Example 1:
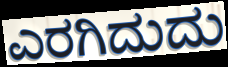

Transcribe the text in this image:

ಎರಗಿದುದು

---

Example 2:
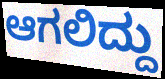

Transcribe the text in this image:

ಆಗಲಿದ್ದು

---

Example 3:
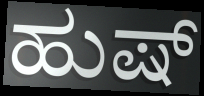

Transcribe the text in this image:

ಹುಷ್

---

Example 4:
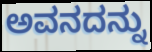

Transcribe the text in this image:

ಅವನದನ್ನು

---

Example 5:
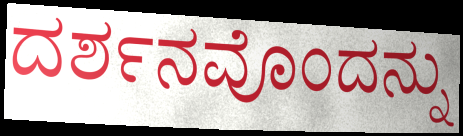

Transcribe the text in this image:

ದರ್ಶನವೊಂದನ್ನು